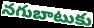
నగుబాటుకు